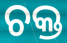
ଚକ୍ତ